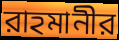
রাহমানীর